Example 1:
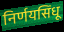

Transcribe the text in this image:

निर्णयसिंधू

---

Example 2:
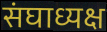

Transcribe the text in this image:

संघाध्यक्ष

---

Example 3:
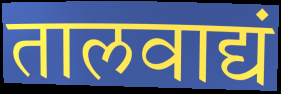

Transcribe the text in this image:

तालवाद्यं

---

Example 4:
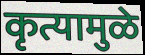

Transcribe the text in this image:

कृत्यामुळे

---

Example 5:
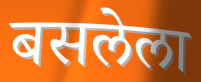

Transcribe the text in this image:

बसलेला